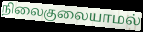
நிலைகுலையாமல்